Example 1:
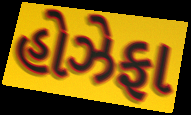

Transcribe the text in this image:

હોઝેફા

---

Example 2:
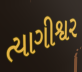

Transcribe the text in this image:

ત્યાગીશ્વર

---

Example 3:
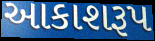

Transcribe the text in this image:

આકાશરૂપ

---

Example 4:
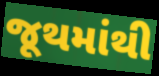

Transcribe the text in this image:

જૂથમાંથી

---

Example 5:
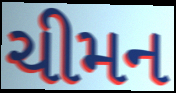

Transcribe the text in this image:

ચીમન